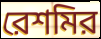
রেশমির